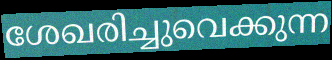
ശേഖരിച്ചുവെക്കുന്ന